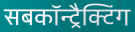
सबकॉन्ट्रैक्टिंग